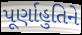
પૂર્ણાહુતિને